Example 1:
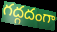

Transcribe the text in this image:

గద్గదంగా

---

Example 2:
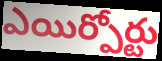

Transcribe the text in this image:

ఎయిర్పోర్టు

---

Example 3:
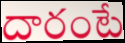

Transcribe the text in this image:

దారంటే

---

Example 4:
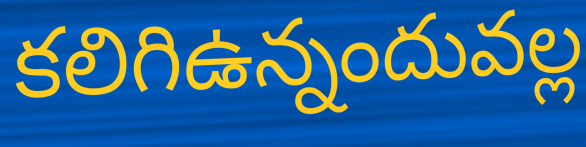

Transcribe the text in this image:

కలిగిఉన్నందువల్ల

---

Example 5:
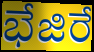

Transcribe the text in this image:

భేజిరే